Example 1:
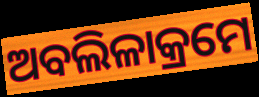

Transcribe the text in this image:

ଅବଲିଳାକ୍ରମେ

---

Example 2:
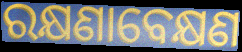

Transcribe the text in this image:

ରକ୍ଷଣାବେକ୍ଷଣ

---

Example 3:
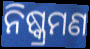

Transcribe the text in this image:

ନିଷ୍କ୍ରମଣ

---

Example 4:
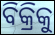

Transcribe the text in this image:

ବିକ୍ରିକୁ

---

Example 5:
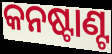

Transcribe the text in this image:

କନଷ୍ଟାଣ୍ଟ